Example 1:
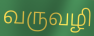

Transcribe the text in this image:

வருவழி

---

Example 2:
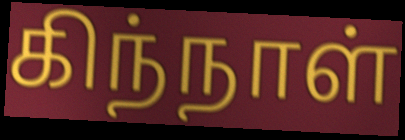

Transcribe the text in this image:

கிந்நாள்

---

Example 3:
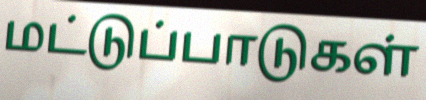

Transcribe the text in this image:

மட்டுப்பாடுகள்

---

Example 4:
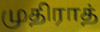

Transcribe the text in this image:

முதிராத்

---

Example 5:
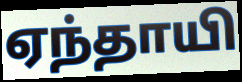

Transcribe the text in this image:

ஏந்தாயி